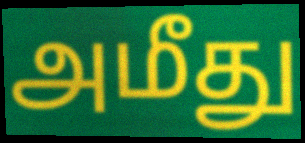
அமீது